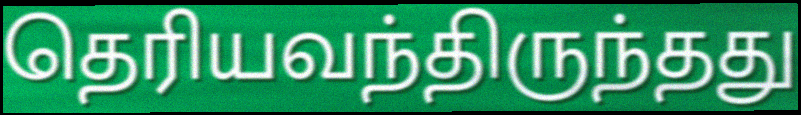
தெரியவந்திருந்தது